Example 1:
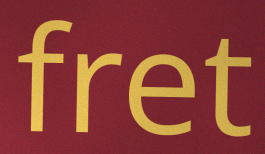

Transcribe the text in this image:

fret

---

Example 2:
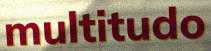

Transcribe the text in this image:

multitudo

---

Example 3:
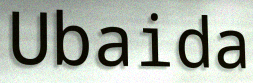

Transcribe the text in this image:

Ubaida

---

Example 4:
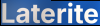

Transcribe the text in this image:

Laterite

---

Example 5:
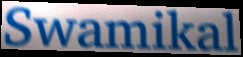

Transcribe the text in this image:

Swamikal